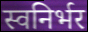
स्वनिर्भर